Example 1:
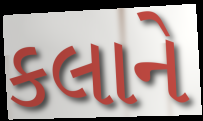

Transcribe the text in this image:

કલાને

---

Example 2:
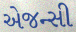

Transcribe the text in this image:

એજન્સી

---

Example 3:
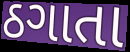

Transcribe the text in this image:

ઠગાતા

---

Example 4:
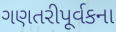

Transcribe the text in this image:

ગણતરીપૂર્વકના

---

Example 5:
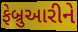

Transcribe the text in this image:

ફેબ્રુઆરીને